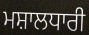
ਮਸ਼ਾਲਧਾਰੀ